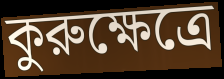
কুরুক্ষেত্রে